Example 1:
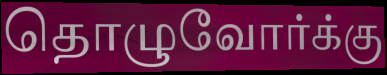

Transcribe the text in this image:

தொழுவோர்க்கு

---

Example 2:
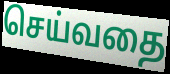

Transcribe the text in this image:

செய்வதை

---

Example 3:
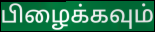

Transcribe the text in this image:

பிழைக்கவும்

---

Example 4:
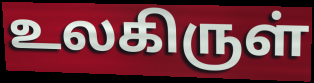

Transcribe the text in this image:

உலகிருள்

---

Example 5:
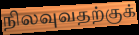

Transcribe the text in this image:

நிலவுவதற்குக்